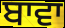
ਬਾਵਾ